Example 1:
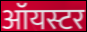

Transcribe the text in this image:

ऑयस्टर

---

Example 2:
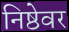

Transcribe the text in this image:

निष्ठेवर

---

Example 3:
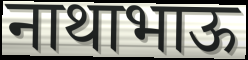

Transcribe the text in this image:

नाथाभाऊ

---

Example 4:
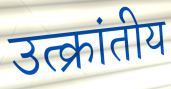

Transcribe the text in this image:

उत्क्रांतीय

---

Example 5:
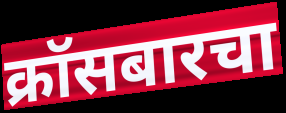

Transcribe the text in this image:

क्रॉसबारचा